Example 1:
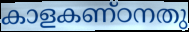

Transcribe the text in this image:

കാളകണ്ഠനതു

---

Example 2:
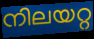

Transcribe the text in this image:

നിലയറ്റ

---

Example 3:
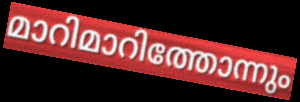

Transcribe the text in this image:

മാറിമാറിത്തോന്നും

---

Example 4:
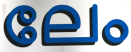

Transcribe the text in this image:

ലേം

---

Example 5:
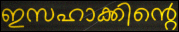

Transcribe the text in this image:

ഇസഹാക്കിന്റെ